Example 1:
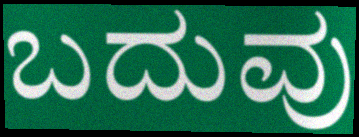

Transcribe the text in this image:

ಬದುವು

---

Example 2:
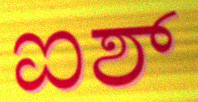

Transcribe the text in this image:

ಐಶ್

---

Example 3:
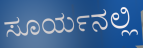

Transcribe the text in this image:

ಸೂರ್ಯನಲ್ಲಿ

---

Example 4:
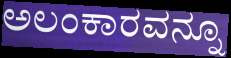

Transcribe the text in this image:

ಅಲಂಕಾರವನ್ನೂ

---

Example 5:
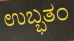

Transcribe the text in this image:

ಉಬ್ಭತಂ